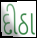
દીઠા